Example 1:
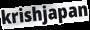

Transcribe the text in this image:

krishjapan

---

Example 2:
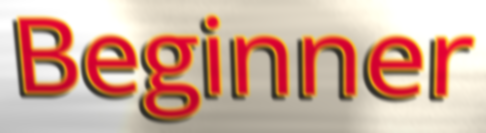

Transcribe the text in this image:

Beginner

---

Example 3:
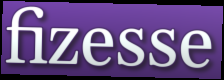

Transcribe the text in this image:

fizesse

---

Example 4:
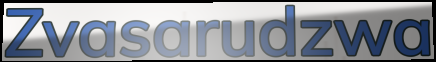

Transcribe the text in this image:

Zvasarudzwa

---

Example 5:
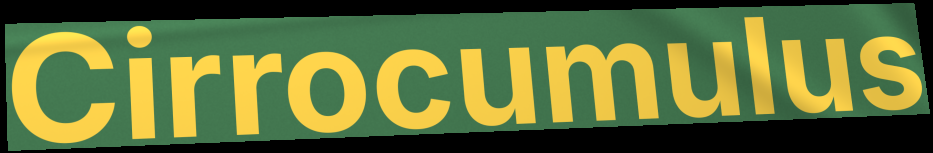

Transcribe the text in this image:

Cirrocumulus